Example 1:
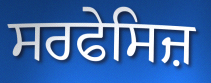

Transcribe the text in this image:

ਸਰਫੇਸਿਜ਼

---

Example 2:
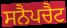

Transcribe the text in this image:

ਸਨੈਪਚੈਟ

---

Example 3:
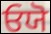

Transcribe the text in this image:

ਓਯੋ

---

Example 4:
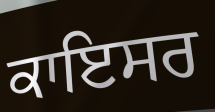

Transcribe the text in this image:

ਕਾਇਸਰ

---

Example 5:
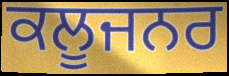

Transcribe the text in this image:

ਕਲੂਜਨਰ